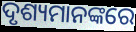
ଦୃଶ୍ୟମାନଙ୍କରେ